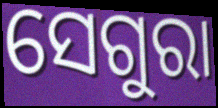
ସେଗୁରା